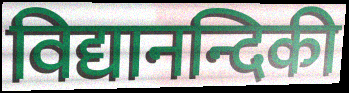
विद्यानन्दिकी